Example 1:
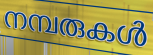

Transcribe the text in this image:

നമ്പരുകൾ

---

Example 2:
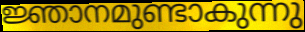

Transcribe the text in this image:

ജ്ഞാനമുണ്ടാകുന്നു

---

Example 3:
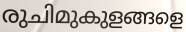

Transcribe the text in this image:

രുചിമുകുളങ്ങളെ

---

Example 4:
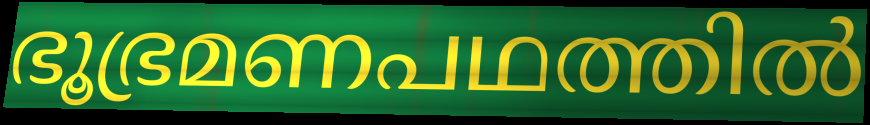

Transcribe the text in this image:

ഭൂഭ്രമണപഥത്തിൽ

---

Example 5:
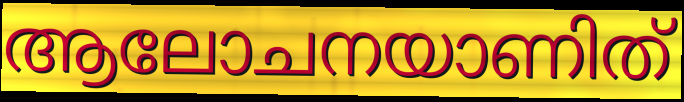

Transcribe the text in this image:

ആലോചനയാണിത്